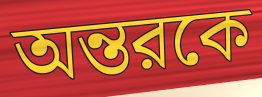
অন্তরকে